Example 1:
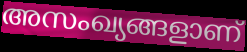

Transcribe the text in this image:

അസംഖ്യങ്ങളാണ്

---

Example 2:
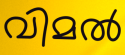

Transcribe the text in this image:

വിമൽ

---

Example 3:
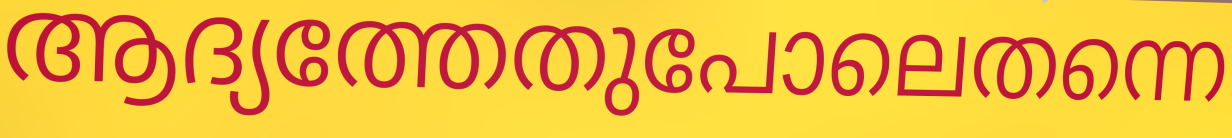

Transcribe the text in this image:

ആദ്യത്തേതുപോലെതന്നെ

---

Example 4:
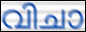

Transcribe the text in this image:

വിചാ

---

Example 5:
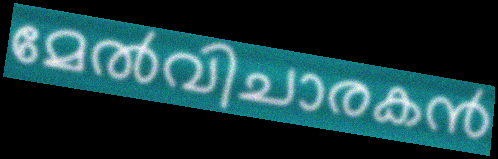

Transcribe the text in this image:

മേൽവിചാരകൻ